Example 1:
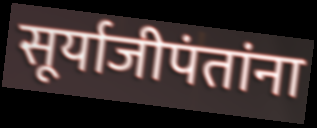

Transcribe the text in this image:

सूर्याजीपंतांना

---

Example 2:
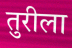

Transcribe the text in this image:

तुरीला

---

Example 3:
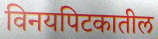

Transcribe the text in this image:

विनयपिटकातील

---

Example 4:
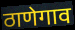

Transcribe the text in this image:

ठाणेगाव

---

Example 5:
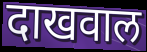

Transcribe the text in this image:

दाखवाल